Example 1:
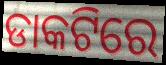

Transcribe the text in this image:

ଡାକଟିରେ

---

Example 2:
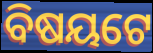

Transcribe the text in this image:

ବିଷୟଟେ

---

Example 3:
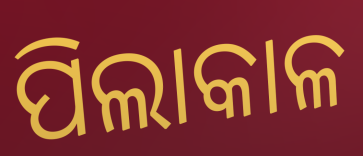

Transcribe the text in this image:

ପିଲାକାଳ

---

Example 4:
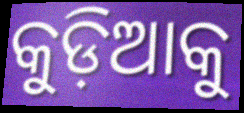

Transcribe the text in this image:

କୁଡ଼ିଆକୁ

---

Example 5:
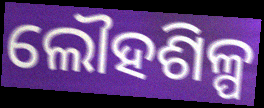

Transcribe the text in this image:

ଲୌହଶିଳ୍ପ